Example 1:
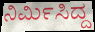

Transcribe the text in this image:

ನಿರ್ಮಿಸಿದ್ದ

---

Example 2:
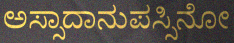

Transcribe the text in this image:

ಅಸ್ಸಾದಾನುಪಸ್ಸಿನೋ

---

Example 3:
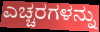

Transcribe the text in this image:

ಎಚ್ಚರಗಳನ್ನು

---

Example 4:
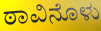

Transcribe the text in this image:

ಠಾವಿನೊಳು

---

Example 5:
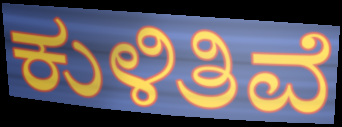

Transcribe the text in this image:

ಕುಳಿತಿವೆ